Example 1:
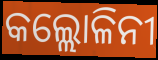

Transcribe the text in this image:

କଲ୍ଲୋଳିନୀ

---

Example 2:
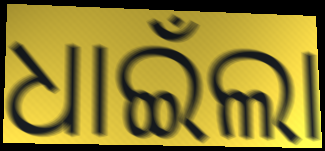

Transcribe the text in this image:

ଧାଇଁଲା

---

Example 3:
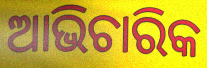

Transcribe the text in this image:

ଆଭିଚାରିକ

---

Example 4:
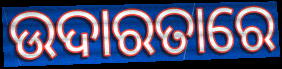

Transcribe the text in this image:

ଉଦାରତାରେ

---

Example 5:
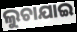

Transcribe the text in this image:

ଲୁଚାଯାଇ